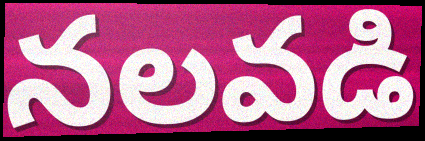
నలవడి